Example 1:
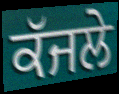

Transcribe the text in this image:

ਕੱਜਲੇ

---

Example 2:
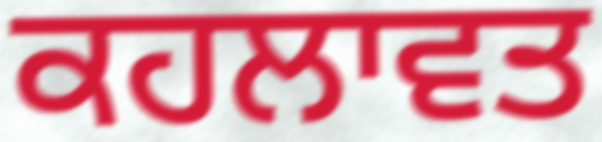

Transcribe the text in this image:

ਕਹਲਾਵਤ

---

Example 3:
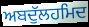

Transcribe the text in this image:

ਅਬਦੁੱਲਹਮਿਦ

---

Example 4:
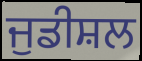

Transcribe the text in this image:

ਜੁਡੀਸ਼ਲ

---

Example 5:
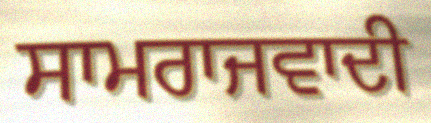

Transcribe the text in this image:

ਸਾਮਰਾਜਵਾਦੀ